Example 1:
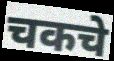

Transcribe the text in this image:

चकचे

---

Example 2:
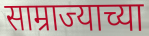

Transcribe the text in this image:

साम्राज्याच्या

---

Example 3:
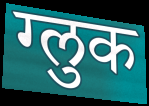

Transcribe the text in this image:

ग्लुक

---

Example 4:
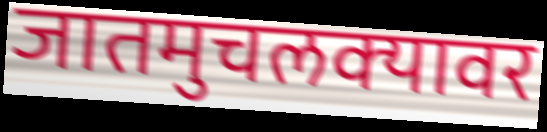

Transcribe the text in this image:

जातमुचलक्यावर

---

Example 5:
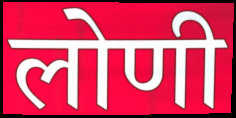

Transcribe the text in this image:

लोणी